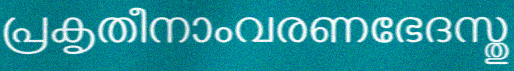
പ്രകൃതീനാംവരണഭേദസ്തു